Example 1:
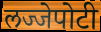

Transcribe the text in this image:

लज्जेपोटी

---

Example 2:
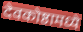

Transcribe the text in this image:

देवकोष्ठामध्ये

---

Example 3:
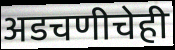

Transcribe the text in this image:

अडचणीचेही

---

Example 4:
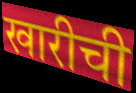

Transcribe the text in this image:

खारीची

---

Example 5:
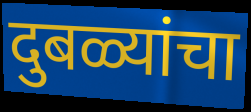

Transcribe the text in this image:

दुबळ्यांचा